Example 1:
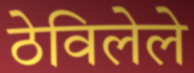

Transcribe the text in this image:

ठेविलेले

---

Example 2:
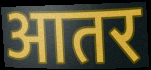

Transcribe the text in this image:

आतर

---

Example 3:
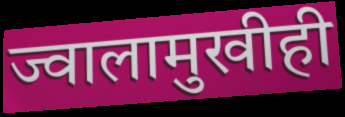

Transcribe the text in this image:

ज्वालामुखीही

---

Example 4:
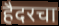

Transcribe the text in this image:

हैदरचा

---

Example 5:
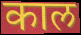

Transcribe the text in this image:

काल